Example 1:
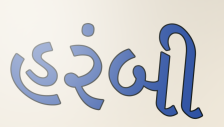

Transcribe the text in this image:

હરંબી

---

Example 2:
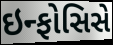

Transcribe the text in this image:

ઇન્ફોસિસે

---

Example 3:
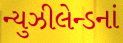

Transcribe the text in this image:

ન્યુઝીલેન્ડનાં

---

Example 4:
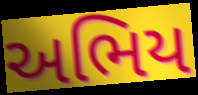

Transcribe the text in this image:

અભિય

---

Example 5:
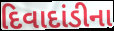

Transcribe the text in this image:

દિવાદાંડીના